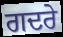
ਗਦਰੇ